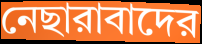
নেছারাবাদের